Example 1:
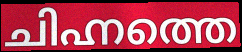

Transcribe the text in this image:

ചിഹ്നത്തെ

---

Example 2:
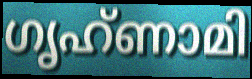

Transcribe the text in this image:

ഗൃഹ്ണാമി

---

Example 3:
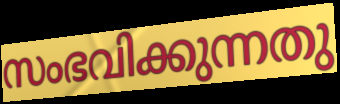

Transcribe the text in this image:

സംഭവിക്കുന്നതു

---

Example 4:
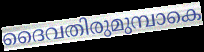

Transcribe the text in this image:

ദൈവതിരുമുമ്പാകെ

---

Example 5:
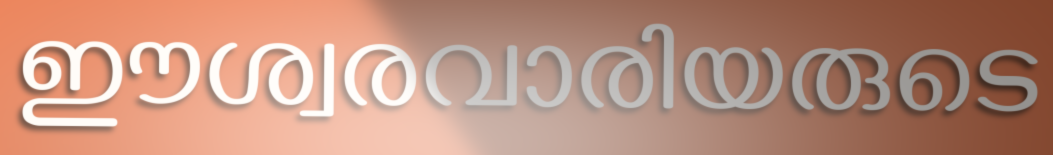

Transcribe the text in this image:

ഈശ്വരവാരിയരുടെ